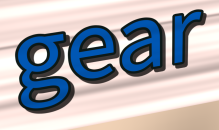
gear